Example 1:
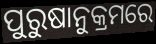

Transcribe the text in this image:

ପୁରୁଷାନୁକ୍ରମରେ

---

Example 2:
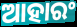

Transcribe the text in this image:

ଆହାରଂ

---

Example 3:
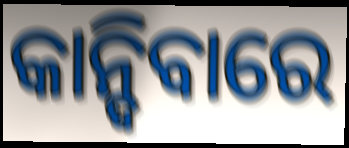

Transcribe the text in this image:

କାନ୍ଦିବାରେ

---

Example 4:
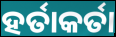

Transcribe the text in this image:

ହର୍ତାକର୍ତା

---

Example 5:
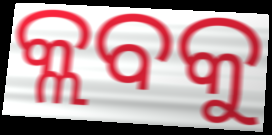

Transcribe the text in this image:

କ୍ଲବକୁ